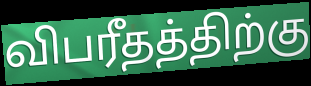
விபரீதத்திற்கு